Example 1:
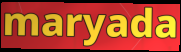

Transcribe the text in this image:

maryada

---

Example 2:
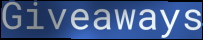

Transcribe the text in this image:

Giveaways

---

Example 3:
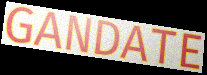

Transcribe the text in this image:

GANDATE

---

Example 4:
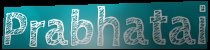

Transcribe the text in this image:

Prabhatai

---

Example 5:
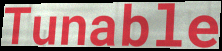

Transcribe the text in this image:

Tunable